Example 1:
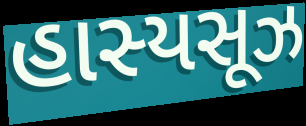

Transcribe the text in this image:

હાસ્યસૂઝ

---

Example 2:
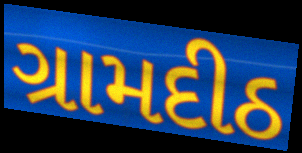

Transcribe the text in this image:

ગ્રામદીઠ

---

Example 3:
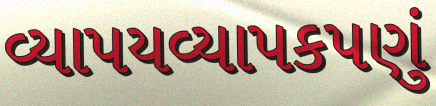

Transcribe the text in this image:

વ્યાપયવ્યાપકપણું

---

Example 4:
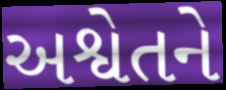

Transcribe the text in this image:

અશ્વેતને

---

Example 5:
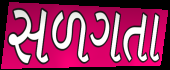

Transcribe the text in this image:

સળગતા